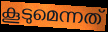
കൂടുമെന്നത്